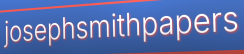
josephsmithpapers